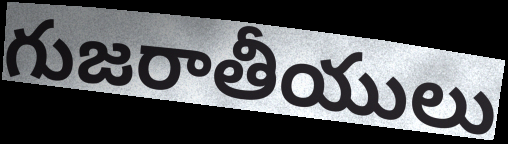
గుజరాతీయులు